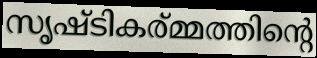
സൃഷ്ടികര്മ്മത്തിന്റെ